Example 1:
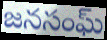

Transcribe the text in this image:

జనసంఘ్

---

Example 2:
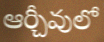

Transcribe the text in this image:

ఆర్చీవులో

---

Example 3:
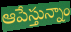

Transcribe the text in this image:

ఆపేస్తున్నాం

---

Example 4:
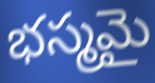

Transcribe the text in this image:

భస్మమై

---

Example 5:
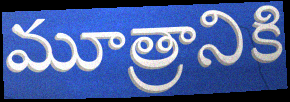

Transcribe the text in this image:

మూత్రానికి